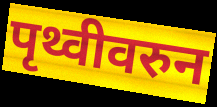
पृथ्वीवरुन